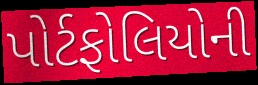
પોર્ટફોલિયોની